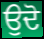
ਉਦੋ